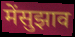
मेंसुझाव